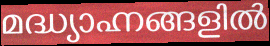
മദ്ധ്യാഹ്നങ്ങളിൽ